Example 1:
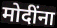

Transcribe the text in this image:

मोदींना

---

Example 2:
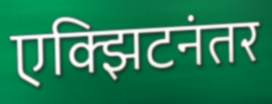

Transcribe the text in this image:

एक्झिटनंतर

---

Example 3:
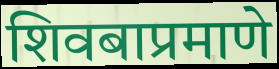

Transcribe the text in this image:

शिवबाप्रमाणे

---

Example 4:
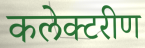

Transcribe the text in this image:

कलेक्टरीण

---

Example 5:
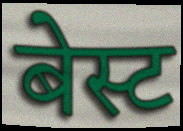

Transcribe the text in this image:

बेस्ट